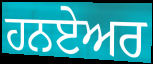
ਹਨਏਅਰ